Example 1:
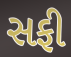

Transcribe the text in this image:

સફી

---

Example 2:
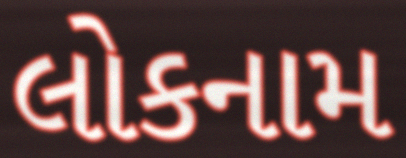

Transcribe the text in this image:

લોકનામ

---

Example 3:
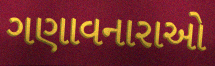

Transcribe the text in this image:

ગણાવનારાઓ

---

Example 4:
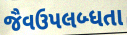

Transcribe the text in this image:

જૈવઉપલબ્ધતા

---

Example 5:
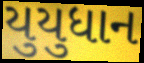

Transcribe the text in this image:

યુયુધાન